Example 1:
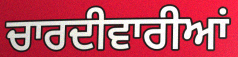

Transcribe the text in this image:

ਚਾਰਦੀਵਾਰੀਆਂ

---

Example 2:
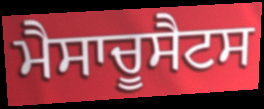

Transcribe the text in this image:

ਮੈਸਾਚੂਸੈਟਸ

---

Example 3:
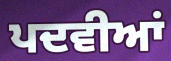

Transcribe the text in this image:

ਪਦਵੀਆਂ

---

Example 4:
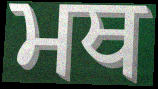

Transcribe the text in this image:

ਮਥ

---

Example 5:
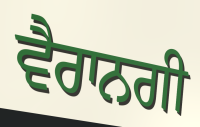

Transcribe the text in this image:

ਵੈਰਾਨਗੀ